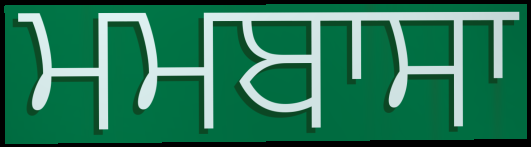
ਮਮਬਾਸਾ